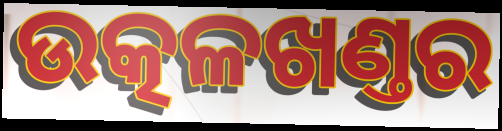
ଉତ୍କଳଖଣ୍ତର